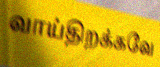
வாய்திறக்கவே